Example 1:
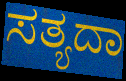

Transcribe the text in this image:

ಸತ್ಯದಾ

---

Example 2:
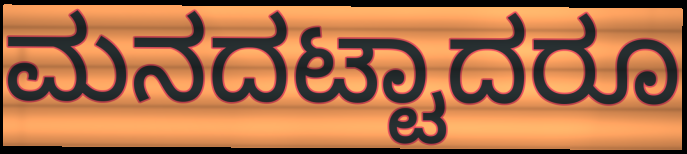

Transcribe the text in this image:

ಮನದಟ್ಟಾದರೂ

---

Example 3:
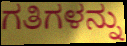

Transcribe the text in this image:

ಗತಿಗಳನ್ನು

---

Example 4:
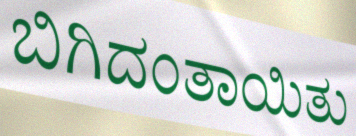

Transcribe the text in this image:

ಬಿಗಿದಂತಾಯಿತು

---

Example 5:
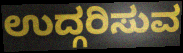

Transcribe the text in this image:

ಉದ್ಗರಿಸುವ